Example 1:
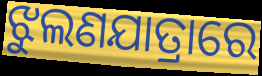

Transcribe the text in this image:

ଝୁଲଣଯାତ୍ରାରେ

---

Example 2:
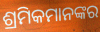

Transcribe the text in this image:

ଶ୍ରମିକମାନଙ୍କର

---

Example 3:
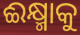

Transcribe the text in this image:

ଈକ୍ଷ୍ମାକୁ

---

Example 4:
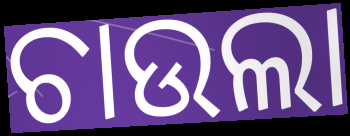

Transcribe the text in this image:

ଚାଉଲା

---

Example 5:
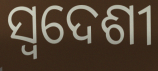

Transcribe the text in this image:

ସ୍ଵଦେଶୀ